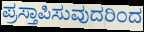
ಪ್ರಸ್ತಾಪಿಸುವುದರಿಂದ